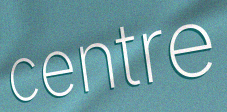
centre